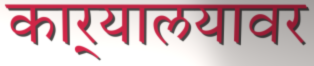
कार्यालयावर